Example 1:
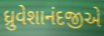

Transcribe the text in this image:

ધ્રુવેશાનંદજીએ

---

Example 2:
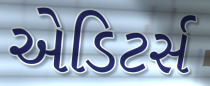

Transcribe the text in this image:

એડિટર્સ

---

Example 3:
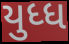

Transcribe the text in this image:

યુધ્ધ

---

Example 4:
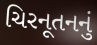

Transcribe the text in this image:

ચિરનૂતનનું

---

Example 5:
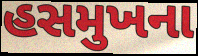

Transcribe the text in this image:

હસમુખના